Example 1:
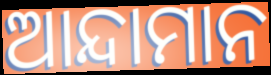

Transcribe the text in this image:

ଆନ୍ଦାମାନ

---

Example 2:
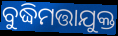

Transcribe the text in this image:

ବୁଦ୍ଧିମତ୍ତାଯୁକ୍ତ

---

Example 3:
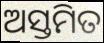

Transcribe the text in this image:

ଅସ୍ତମିତ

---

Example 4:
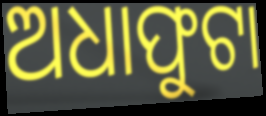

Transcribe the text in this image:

ଅଧାଫୁଟା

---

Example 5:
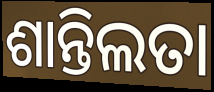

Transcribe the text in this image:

ଶାନ୍ତିଲତା